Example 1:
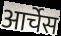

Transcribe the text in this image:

आर्चेस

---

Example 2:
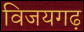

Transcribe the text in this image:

विजयगढ़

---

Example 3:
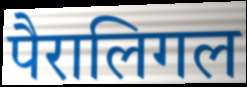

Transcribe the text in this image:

पैरालिगल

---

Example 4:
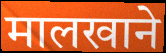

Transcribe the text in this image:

मालखाने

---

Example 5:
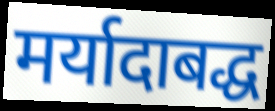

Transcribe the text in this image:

मर्यादाबद्ध